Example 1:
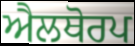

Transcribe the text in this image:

ਐਲਥੋਰਪ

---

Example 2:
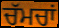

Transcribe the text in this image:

ਚੱਮਚਾਂ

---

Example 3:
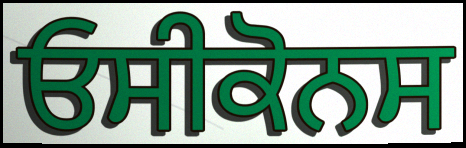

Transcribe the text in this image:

ਓਸੀਕੋਨਸ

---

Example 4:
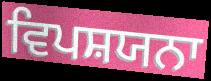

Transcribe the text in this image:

ਵਿਪਸ਼ਯਨਾ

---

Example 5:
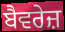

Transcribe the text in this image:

ਬੈਵਰੇਜ਼